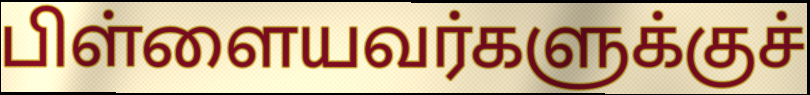
பிள்ளையவர்களுக்குச்